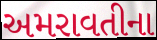
અમરાવતીના